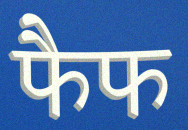
फैफ